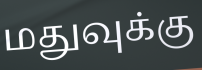
மதுவுக்கு